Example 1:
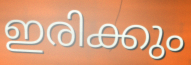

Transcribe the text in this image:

ഇരിക്കും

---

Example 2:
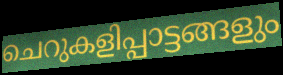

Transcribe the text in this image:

ചെറുകളിപ്പാട്ടങ്ങളും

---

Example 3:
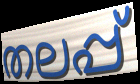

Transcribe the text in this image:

തലപ്പ്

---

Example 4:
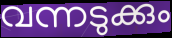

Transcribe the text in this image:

വന്നടുക്കും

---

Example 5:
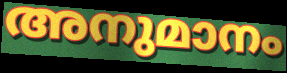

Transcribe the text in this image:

അനുമാനം